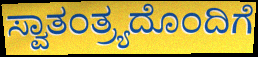
ಸ್ವಾತಂತ್ರ್ಯದೊಂದಿಗೆ